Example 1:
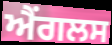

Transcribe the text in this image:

ਐਂਗਲਸ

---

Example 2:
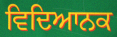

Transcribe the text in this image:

ਵਿਦਿਆਨਕ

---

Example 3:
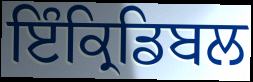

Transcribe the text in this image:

ਇੰਕ੍ਰਿਡਿਬਲ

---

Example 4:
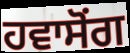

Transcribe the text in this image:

ਹਵਾਸੋਂਗ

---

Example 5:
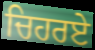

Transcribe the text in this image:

ਚਿਹਰਏ